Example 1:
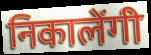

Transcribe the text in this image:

निकालेंगी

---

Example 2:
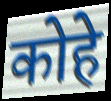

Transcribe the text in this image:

कोहे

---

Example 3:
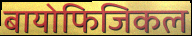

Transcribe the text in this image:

बायोफिजिकल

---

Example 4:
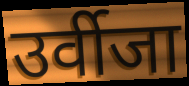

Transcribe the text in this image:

उर्वीजा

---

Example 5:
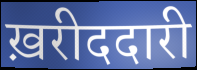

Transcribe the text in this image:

ख़रीददारी